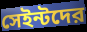
সেইন্টদের